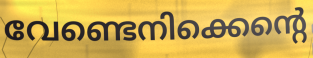
വേണ്ടെനിക്കെന്റെ